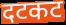
दटकट